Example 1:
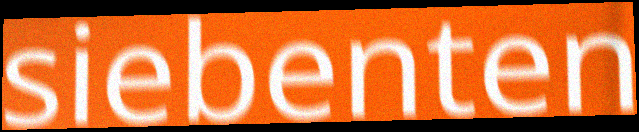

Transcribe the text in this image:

siebenten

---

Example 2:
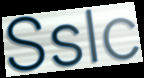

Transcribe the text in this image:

Sslc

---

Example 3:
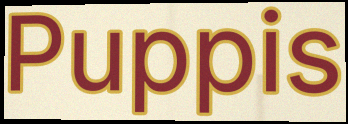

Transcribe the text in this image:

Puppis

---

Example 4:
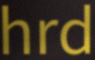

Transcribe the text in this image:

hrd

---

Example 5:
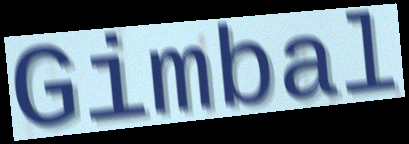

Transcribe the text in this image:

Gimbal